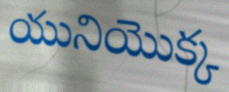
యునియొక్క